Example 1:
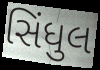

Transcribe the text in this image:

સિંધુલ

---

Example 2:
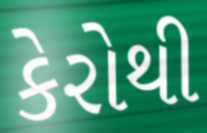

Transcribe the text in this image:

કેરોથી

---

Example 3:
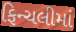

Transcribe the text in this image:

ફિન્ચલીમાં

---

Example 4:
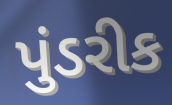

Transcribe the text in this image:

પુંડરીક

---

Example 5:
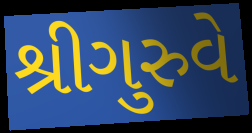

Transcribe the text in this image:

શ્રીગુરુવે